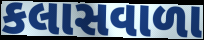
કલાસવાળા